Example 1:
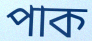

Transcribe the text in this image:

পাক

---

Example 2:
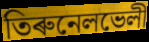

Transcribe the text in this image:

তিৰুনেলভেলী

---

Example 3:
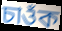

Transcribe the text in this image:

চাওঁক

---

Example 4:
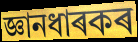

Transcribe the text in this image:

জ্ঞানধাৰকৰ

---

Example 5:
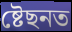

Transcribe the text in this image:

ষ্টেছনত